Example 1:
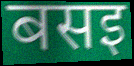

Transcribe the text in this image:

बसइ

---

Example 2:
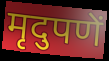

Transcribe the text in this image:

मृदुपणें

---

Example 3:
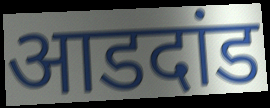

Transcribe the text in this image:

आडदांड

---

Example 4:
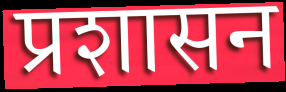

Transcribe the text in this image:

प्रशासन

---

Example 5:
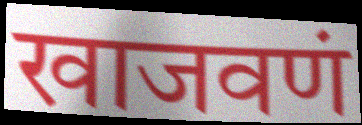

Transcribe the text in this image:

खाजवणं